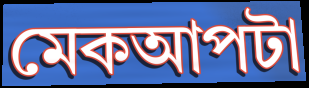
মেকআপটা